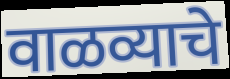
वाळव्याचे